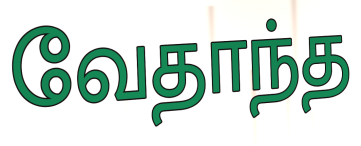
வேதாந்த